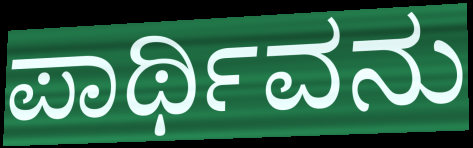
ಪಾರ್ಥಿವನು